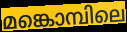
മങ്കൊമ്പിലെ